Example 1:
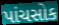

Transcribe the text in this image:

પાંચસોક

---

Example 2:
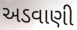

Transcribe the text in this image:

અડવાણી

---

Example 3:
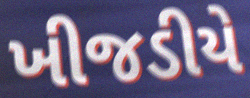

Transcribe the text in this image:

ખીજડીયે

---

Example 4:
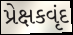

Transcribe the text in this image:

પ્રેક્ષકવૃંદ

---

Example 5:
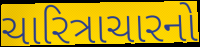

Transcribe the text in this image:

ચારિત્રાચારનો